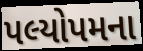
પલ્યોપમના